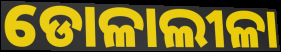
ଡୋଳାଲୀଳା